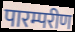
पारम्परीण